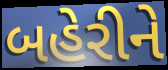
બહેરીને